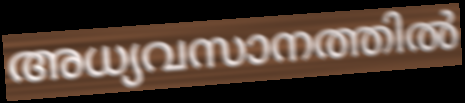
അധ്യവസാനത്തിൽ